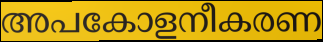
അപകോളനീകരണ